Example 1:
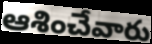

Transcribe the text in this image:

ఆశించేవారు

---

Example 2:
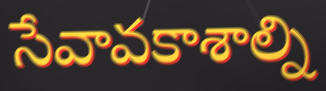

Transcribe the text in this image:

సేవావకాశాల్ని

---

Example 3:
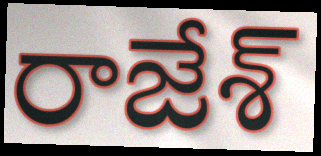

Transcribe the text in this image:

రాజేశ్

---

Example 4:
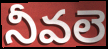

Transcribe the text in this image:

నీవలె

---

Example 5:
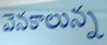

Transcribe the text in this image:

వెనకాలున్న